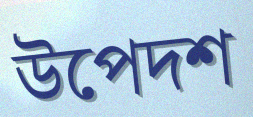
উপেদশ